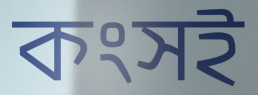
কংসই